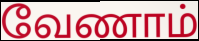
வேணாம்